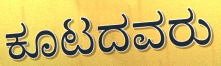
ಕೂಟದವರು